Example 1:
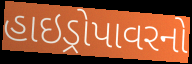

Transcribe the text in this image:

હાઇડ્રોપાવરનો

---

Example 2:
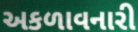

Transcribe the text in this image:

અકળાવનારી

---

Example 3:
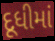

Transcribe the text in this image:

દૂધીમાં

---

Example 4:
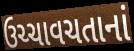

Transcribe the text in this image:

ઉચ્ચાવચતાનાં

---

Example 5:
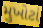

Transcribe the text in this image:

મુખોટાં